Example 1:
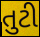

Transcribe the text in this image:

તુટી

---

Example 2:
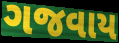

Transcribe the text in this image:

ગજવાય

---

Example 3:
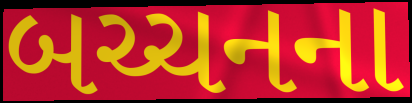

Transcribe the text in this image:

બચ્ચનના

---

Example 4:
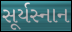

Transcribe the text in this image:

સૂર્યસ્નાન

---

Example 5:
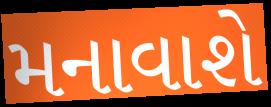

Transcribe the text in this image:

મનાવાશે